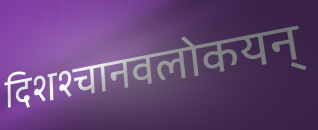
दिशश्चानवलोकयन्